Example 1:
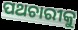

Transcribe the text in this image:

ପଥଚାରୀକୁ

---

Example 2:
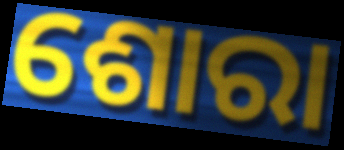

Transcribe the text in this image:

ଶୋରା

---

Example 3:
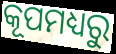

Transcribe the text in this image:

କୂପମଧ୍ୟରୁ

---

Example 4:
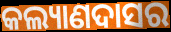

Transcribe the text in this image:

କଲ୍ୟାଣଦାସର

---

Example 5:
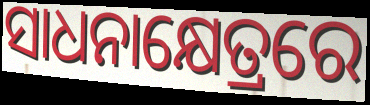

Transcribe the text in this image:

ସାଧନାକ୍ଷେତ୍ରରେ